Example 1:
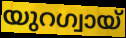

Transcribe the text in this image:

യുറഗ്വായ്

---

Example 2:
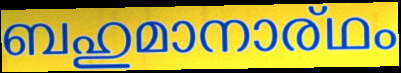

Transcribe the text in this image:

ബഹുമാനാര്ഥം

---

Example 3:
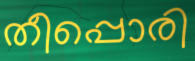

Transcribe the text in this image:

തീപ്പൊരി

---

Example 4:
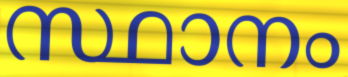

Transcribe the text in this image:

സ്ഥാനം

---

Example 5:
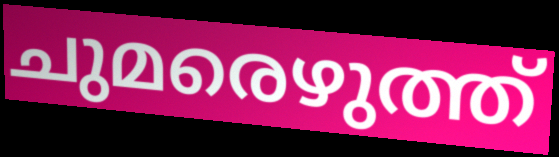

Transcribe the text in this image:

ചുമരെഴുത്ത്